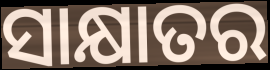
ସାକ୍ଷାତର